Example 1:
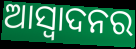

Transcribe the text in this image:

ଆସ୍ବାଦନର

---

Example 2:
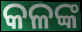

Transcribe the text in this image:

କଳଙ୍କ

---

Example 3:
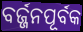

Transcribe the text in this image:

ବର୍ଜ୍ଜନପୂର୍ବକ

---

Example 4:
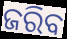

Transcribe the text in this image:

ଜରିବ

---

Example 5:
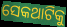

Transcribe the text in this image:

ସେକଥାଟିକୁ